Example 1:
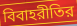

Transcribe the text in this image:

বিবাহরীতির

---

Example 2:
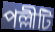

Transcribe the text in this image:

পল্লীটি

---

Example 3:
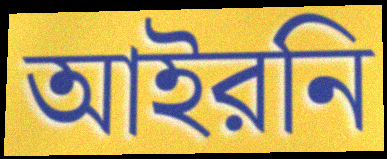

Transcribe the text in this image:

আইরনি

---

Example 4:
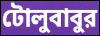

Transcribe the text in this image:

টোলুবাবুর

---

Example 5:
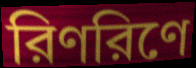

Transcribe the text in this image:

রিণরিণে